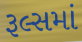
રૂલ્સમાં